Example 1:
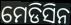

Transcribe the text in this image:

ମେଡିସିନ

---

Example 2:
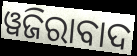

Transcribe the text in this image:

ୱଜିରାବାଦ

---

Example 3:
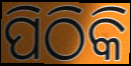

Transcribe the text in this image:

ପିଠିକି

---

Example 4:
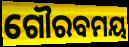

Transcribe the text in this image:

ଗୌରବମୟ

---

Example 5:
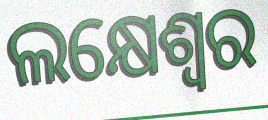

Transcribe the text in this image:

ଲକ୍ଷେଶ୍ୱର